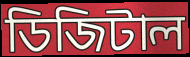
ডিজিটাল